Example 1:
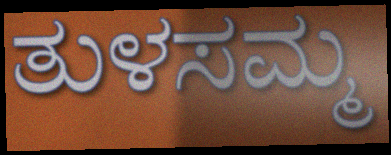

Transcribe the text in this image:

ತುಳಸಮ್ಮ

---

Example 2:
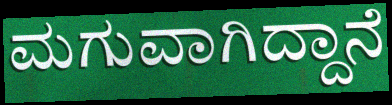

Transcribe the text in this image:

ಮಗುವಾಗಿದ್ದಾನೆ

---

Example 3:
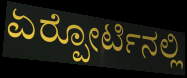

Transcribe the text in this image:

ಏರ್‍ಪೋರ್ಟಿನಲ್ಲಿ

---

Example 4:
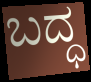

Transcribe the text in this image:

ಬದ್ಧ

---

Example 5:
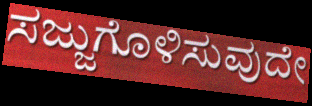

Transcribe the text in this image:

ಸಜ್ಜುಗೊಳಿಸುವುದೇ